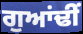
ਗੁਆਂਢੀਂ